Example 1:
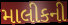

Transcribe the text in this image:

માલીકની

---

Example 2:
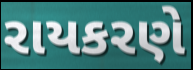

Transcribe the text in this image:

રાયકરણે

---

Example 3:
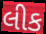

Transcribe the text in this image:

લીક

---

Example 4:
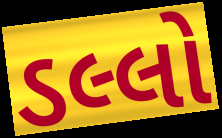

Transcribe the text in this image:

ડલ્લો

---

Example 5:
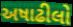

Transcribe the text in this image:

અષાઢીલો